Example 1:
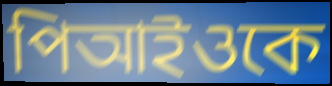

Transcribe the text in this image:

পিআইওকে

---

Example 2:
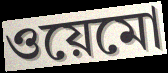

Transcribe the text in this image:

ওয়েমো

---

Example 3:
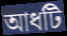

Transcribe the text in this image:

আধটি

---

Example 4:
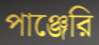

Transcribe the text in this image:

পাঞ্জেরি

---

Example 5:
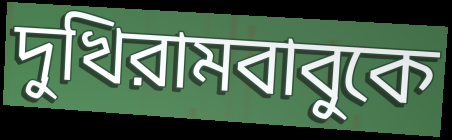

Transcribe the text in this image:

দুখিরামবাবুকে